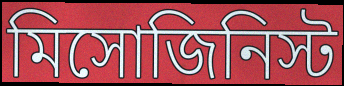
মিসোজিনিস্ট